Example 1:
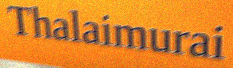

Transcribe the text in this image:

Thalaimurai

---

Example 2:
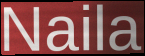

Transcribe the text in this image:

Naila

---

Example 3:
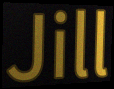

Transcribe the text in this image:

Jill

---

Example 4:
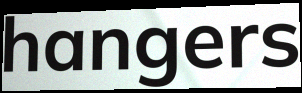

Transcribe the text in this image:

hangers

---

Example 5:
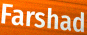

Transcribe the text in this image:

Farshad